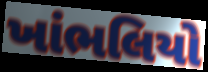
ખાંભલિયો